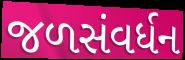
જળસંવર્ધન